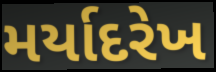
મર્યાદરેખ